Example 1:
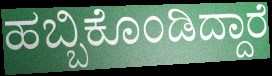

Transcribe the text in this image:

ಹಬ್ಬಿಕೊಂಡಿದ್ದಾರೆ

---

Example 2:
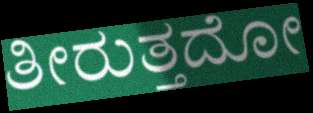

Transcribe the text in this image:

ತೀರುತ್ತದೋ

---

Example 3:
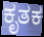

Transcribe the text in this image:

ಕೃತಕ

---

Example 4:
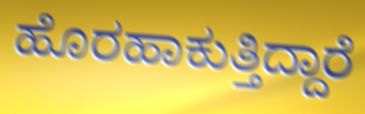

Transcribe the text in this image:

ಹೊರಹಾಕುತ್ತಿದ್ದಾರೆ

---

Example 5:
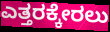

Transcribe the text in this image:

ಎತ್ತರಕ್ಕೇರಲು